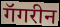
गॅगरीन